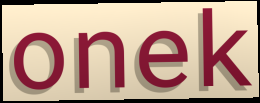
onek